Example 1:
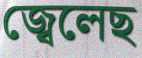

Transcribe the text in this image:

জ্বেলেছ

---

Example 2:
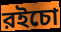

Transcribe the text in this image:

রইচো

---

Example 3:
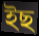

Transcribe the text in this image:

ইছ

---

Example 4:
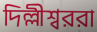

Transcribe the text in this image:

দিল্লীশ্বররা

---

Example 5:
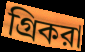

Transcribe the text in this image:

গ্রিকরা